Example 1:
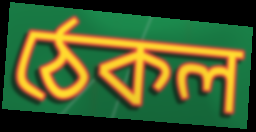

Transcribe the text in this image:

ঠেকল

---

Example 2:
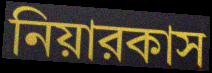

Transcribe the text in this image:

নিয়ারকাস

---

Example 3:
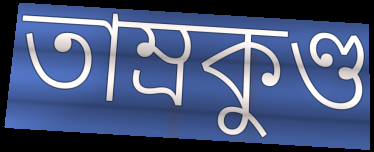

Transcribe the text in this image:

তাম্রকুণ্ড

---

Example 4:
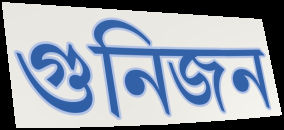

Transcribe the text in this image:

গুনিজন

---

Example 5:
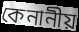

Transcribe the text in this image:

কেনানীয়